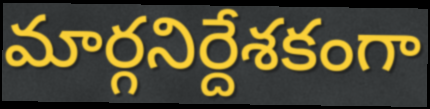
మార్గనిర్దేశకంగా